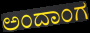
ಅಂದಾಂಗ